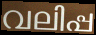
വലിപ്പ